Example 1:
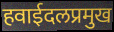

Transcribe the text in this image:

हवाईदलप्रमुख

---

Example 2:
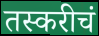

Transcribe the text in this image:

तस्करीचं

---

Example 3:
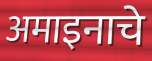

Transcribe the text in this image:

अमाइनाचे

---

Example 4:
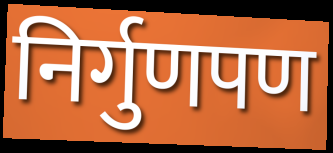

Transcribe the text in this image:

निर्गुणपण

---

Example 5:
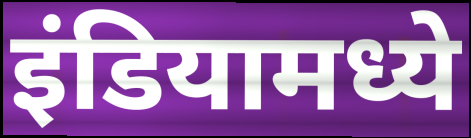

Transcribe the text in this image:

इंडियामध्ये